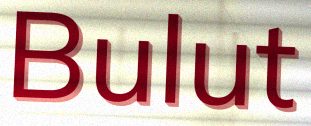
Bulut